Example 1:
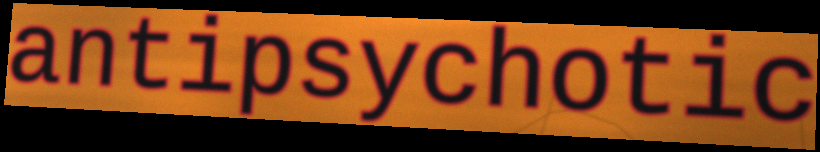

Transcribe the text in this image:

antipsychotic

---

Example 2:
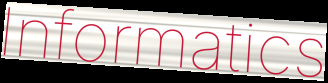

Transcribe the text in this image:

Informatics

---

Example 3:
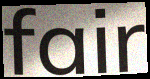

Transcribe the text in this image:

fair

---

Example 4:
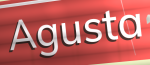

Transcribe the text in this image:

Agusta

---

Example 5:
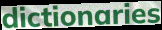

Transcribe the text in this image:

dictionaries